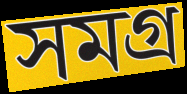
সমগ্ৰ